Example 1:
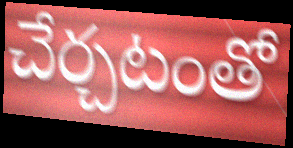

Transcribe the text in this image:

చేర్చటంతో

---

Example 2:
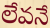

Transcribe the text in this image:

లేవనే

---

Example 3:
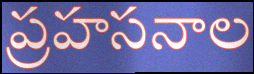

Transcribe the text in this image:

ప్రహసనాల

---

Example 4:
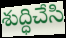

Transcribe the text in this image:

శుద్ధిచేసి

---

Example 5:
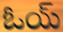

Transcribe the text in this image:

ఓయ్